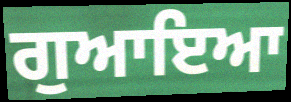
ਗੁਆਇਆ